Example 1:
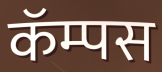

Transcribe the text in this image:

कॅम्पस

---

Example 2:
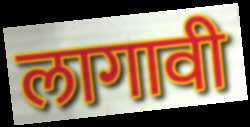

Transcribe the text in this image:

लागावी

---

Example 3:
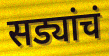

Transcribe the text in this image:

सड्यांचं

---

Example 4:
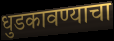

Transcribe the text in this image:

धुडकावण्याचा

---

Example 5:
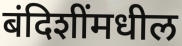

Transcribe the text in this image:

बंदिशींमधील